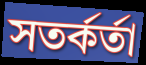
সতর্কর্তা